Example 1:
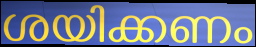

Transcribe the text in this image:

ശയിക്കണം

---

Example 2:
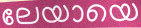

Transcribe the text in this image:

ലേയായെ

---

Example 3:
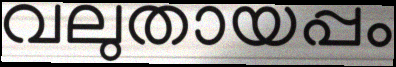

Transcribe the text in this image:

വലുതായപ്പം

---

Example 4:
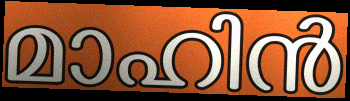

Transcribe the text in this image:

മാഹിൻ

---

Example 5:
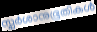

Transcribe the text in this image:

സ്പർശാനുഭൂതികൾ